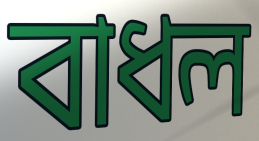
বাধল